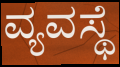
ವ್ಯವಸ್ಥೆ